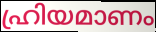
ഹ്രിയമാണം